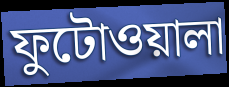
ফুটোওয়ালা